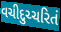
વચીદુચ્ચરિતં